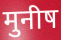
मुनीष